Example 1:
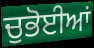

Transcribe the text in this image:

ਚੁਭੋਈਆਂ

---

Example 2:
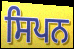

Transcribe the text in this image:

ਸਿਪਨ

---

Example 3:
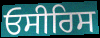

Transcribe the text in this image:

ਓਸੀਰਿਸ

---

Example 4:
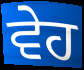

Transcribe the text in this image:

ਵੇਹ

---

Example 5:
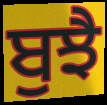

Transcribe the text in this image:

ਬੁਝੈ